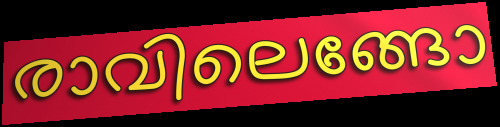
രാവിലെങ്ങോ